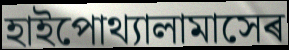
হাইপোথ্যালামাসেৰ